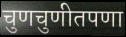
चुणचुणीतपणा